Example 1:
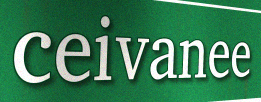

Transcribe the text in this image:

ceivanee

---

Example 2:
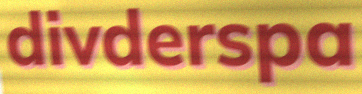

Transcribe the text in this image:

divderspa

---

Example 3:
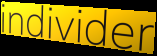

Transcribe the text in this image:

individer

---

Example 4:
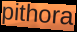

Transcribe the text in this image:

pithora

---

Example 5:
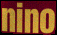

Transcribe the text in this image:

nino